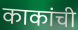
काकांची